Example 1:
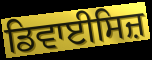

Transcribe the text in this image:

ਡਿਵਾਈਸਿਜ਼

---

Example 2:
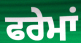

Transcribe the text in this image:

ਫਰੇਮਾਂ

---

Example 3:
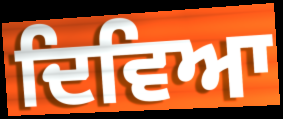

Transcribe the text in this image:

ਦਿਵਿਆ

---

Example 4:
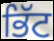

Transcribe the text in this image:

ਭਿੱਟ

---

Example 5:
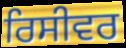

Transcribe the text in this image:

ਰਿਸੀਵਰ